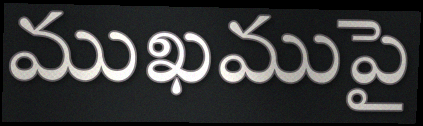
ముఖముపై